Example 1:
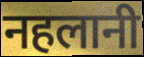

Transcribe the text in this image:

नहलानी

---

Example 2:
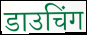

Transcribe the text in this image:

डाउचिंग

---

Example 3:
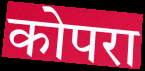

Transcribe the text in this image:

कोपरा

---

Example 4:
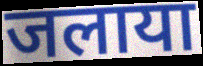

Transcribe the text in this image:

जलाया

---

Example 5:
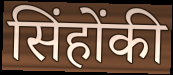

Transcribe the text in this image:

सिंहोंकी